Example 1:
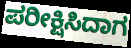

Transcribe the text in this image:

ಪರೀಕ್ಷಿಸಿದಾಗ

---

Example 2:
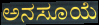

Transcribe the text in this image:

ಅನಸೂಯೆ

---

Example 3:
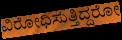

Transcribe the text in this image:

ವಿರೋಧಿಸುತ್ತಿದ್ದರೋ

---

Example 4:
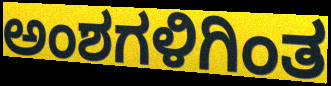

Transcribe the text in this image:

ಅಂಶಗಳಿಗಿಂತ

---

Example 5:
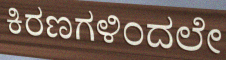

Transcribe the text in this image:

ಕಿರಣಗಳಿಂದಲೇ